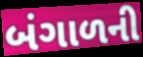
બંગાળની